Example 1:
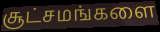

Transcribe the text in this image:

சூட்சமங்களை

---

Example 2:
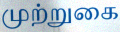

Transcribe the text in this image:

முற்றுகை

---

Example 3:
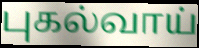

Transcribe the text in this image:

புகல்வாய்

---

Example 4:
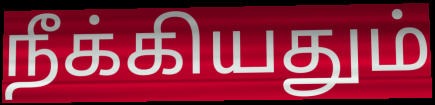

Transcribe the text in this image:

நீக்கியதும்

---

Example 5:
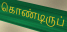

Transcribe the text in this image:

கொண்டிருப்